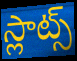
స్లాట్స్